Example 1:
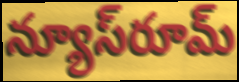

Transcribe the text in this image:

న్యూస్‌రూమ్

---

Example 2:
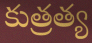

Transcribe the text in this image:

కుత్రత్య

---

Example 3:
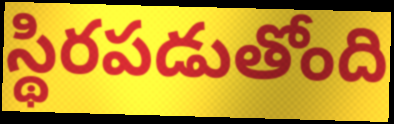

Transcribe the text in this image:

స్థిరపడుతోంది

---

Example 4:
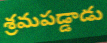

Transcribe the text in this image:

శ్రమపడ్డాడు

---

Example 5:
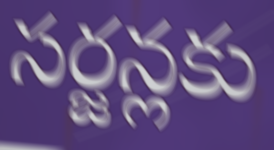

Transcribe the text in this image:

సర్జన్లకు